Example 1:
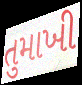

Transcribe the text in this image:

તુમાખી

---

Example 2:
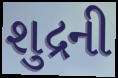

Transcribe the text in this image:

શુદ્રની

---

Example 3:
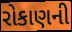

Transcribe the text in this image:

રોકાણની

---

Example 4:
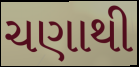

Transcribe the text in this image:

ચણાથી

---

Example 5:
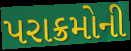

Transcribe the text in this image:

પરાક્રમોની